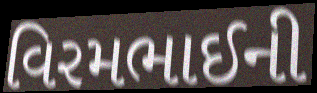
વિરમભાઈની